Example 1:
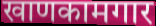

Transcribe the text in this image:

खाणकामगार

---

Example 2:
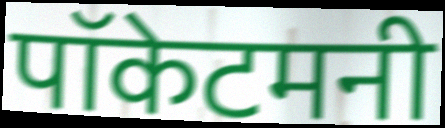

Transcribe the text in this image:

पॉकेटमनी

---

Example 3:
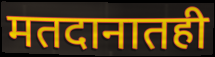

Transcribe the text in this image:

मतदानातही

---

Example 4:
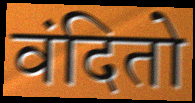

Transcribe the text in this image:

वंदितो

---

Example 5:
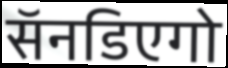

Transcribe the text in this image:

सॅनडिएगो